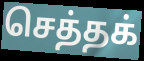
செத்தக்